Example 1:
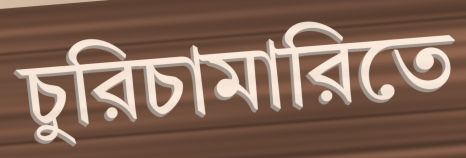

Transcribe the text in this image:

চুরিচামারিতে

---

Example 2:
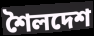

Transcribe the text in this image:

শৈলদেশ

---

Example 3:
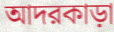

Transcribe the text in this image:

আদরকাড়া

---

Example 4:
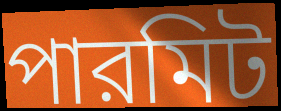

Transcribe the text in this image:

পারমিট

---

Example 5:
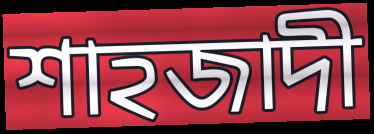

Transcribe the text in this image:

শাহজাদী